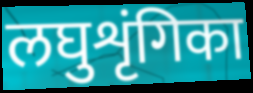
लघुशृंगिका